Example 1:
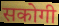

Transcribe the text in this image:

सकोगी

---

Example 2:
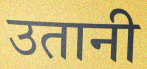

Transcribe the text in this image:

उतानी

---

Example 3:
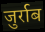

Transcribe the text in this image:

जुर्राब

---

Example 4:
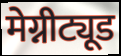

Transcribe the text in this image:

मेग्नीट्यूड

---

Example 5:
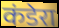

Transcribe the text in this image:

कंडेरा